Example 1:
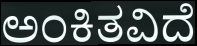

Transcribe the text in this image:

ಅಂಕಿತವಿದೆ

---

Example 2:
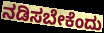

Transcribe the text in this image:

ನಡಿಸಬೇಕೆಂದು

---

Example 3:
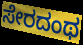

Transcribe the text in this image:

ಸೇರದಂಥ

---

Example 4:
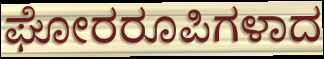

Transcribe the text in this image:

ಘೋರರೂಪಿಗಳಾದ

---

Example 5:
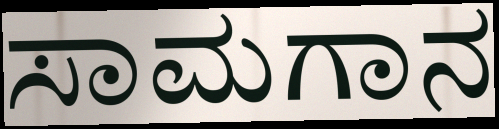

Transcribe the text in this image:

ಸಾಮಗಾನ